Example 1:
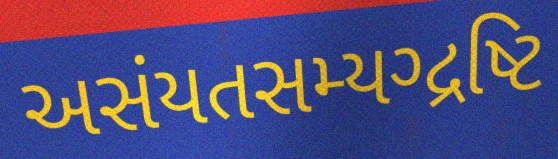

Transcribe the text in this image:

અસંયતસમ્યગ્દ્રષ્ટિ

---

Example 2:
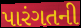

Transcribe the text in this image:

પારંગતની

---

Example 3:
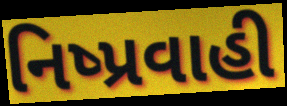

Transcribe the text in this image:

નિષ્પ્રવાહી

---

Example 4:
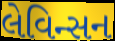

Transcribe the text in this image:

લેવિન્સન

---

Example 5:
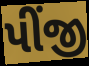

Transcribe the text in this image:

પીંજી